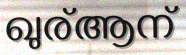
ഖുര്ആന്